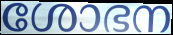
ശോഭന